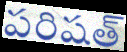
పరిషత్